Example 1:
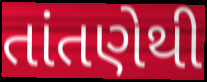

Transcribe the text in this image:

તાંતણેથી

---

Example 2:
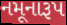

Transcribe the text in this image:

નમૂનારૂપ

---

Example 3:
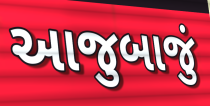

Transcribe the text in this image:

આજુબાજું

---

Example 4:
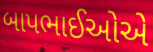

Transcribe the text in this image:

બાપભાઈઓએ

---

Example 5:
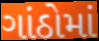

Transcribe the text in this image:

ગાંઠોમાં